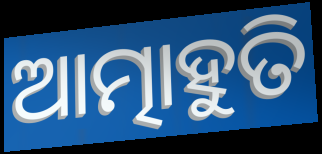
ଆତ୍ମାହୁତି